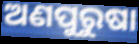
ଅଣପୁରୁଷା